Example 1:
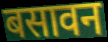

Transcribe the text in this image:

बसावन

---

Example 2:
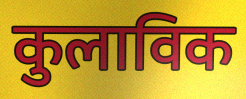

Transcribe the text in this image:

कुलाविक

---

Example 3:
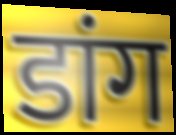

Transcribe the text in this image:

डांग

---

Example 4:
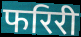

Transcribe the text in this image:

फरिरी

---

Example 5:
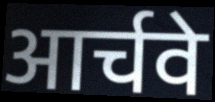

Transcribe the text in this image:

आर्चवे